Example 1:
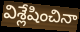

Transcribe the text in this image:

విశ్లేషించినా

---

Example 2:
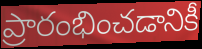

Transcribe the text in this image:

ప్రారంభించడానికీ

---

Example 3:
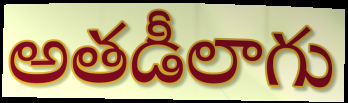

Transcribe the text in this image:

అతడీలాగు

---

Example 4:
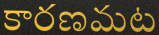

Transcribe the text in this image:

కారణమట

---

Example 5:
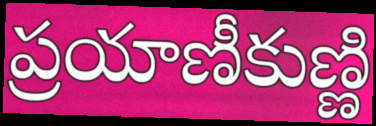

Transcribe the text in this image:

ప్రయాణీకుణ్ణి